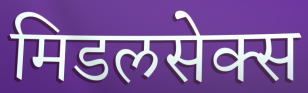
मिडलसेक्स